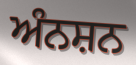
ਅੰਨਸ਼ਨ